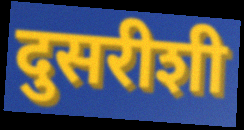
दुसरीशी